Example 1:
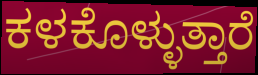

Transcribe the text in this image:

ಕಳಕೊಳ್ಳುತ್ತಾರೆ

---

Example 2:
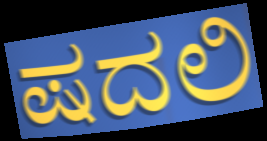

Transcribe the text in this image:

ಷದಲಿ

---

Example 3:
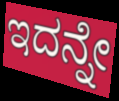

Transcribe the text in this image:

ಇದನ್ನೇ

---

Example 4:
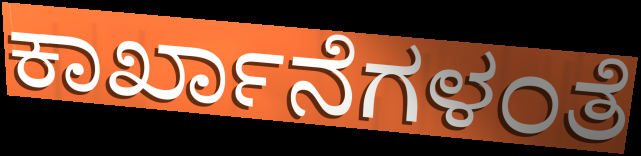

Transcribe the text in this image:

ಕಾರ್ಖಾನೆಗಳಂತೆ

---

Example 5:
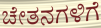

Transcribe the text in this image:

ಚೇತನಗಳಿಗೆ